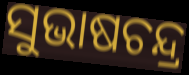
ସୁଭାଷଚନ୍ଦ୍ର